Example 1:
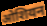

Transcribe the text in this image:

ओशियन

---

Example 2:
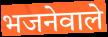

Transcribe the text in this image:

भजनेवाले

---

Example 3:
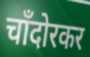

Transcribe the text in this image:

चाँदोरकर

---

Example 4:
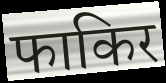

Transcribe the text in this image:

फाकिर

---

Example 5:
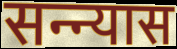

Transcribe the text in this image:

सन्न्यास